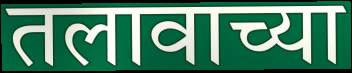
तलावाच्या